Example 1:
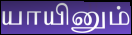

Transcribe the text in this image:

யாயினும்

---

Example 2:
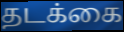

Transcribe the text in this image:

தடக்கை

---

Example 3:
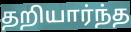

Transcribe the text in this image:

தறியார்ந்த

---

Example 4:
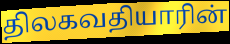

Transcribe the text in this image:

திலகவதியாரின்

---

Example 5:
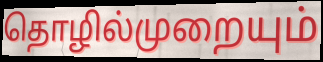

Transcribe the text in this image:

தொழில்முறையும்